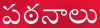
పఠనాలు